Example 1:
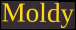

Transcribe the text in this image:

Moldy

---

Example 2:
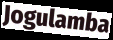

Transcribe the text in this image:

Jogulamba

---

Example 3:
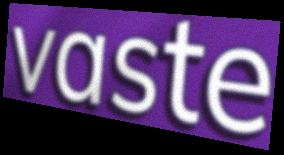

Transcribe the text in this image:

vaste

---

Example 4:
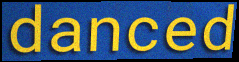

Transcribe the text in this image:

danced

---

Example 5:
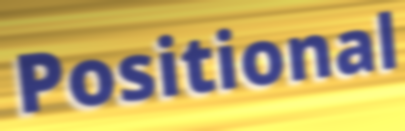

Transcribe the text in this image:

Positional